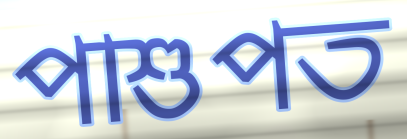
পাশুপত